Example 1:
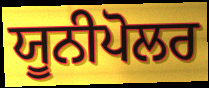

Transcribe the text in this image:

ਯੂਨੀਪੋਲਰ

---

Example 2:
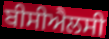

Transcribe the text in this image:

ਬੀਸੀਐਲਸੀ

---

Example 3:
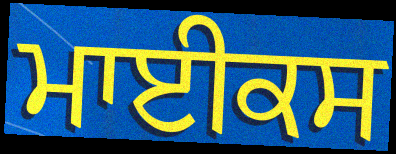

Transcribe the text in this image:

ਮਾਈਕਸ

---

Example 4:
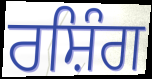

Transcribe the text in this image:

ਰਸ਼ਿੰਗ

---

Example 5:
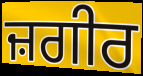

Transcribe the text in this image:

ਜ਼ਗੀਰ